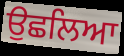
ਉਛਲਿਆ